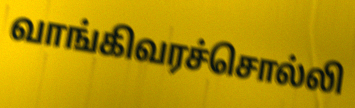
வாங்கிவரச்சொல்லி